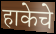
हाकेचे